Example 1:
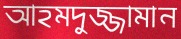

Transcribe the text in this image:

আহমদুজ্জামান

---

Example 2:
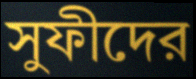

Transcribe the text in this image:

সুফীদের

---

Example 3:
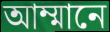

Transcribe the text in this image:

আম্মানে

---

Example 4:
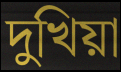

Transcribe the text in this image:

দুখিয়া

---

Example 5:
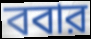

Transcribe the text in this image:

ববার